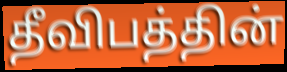
தீவிபத்தின்